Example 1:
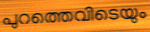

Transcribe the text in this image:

പുറത്തെവിടെയും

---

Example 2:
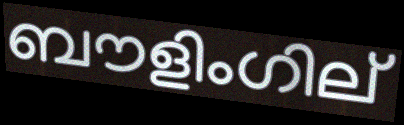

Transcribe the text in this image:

ബൗളിംഗില്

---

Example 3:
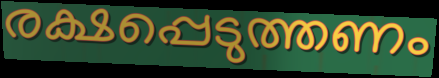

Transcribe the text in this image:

രക്ഷപ്പെടുത്തണം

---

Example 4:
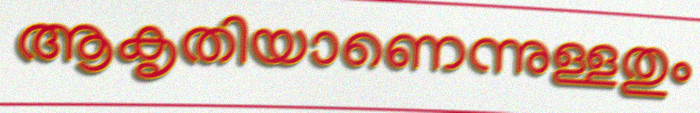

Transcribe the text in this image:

ആകൃതിയാണെന്നുള്ളതും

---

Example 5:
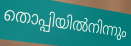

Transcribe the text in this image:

തൊപ്പിയിൽനിന്നും